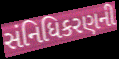
સંનિધિકરણની